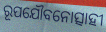
ରୂପଯୌବନୋତ୍ସାହୀ